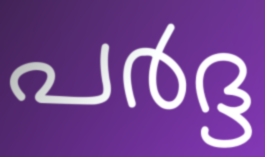
പർദ്ദ